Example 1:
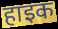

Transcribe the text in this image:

हाइक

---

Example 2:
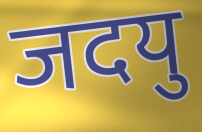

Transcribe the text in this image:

जदयु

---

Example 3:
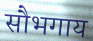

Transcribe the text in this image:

सौभगाय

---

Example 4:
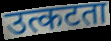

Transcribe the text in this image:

उत्कटता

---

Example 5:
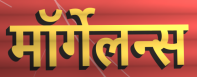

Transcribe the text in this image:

मॉर्गेलन्स